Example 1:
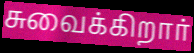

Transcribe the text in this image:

சுவைக்கிறார்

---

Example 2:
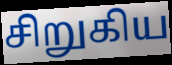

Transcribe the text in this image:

சிறுகிய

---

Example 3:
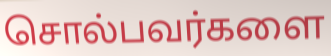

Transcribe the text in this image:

சொல்பவர்களை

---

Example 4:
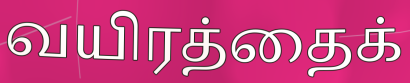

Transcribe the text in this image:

வயிரத்தைக்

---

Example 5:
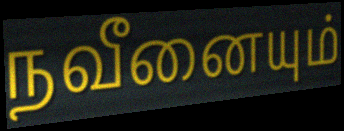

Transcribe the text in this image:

நவீனையும்